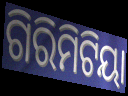
ଗିରିମିଟିୟା